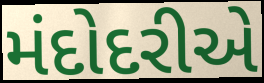
મંદોદરીએ